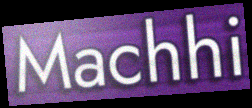
Machhi